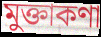
মুক্তাকণা